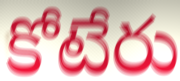
కోటేరు